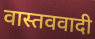
वास्तववादी